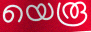
യെരൂ